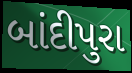
બાંદીપુરા